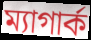
ম্যাগার্ক